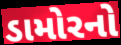
ડામોરનો